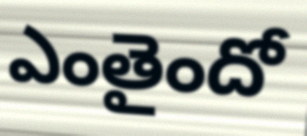
ఎంతైందో